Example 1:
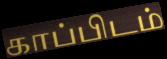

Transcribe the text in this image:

காப்பிடம்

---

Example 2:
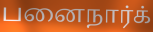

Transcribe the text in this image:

பனைநார்க்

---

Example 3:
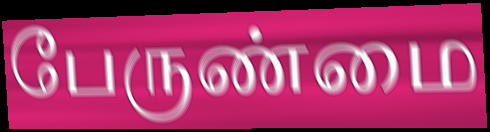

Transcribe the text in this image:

பேருண்மை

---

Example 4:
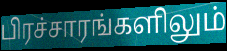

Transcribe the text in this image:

பிரச்சாரங்களிலும்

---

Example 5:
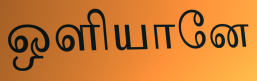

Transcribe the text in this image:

ஒளியானே